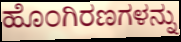
ಹೊಂಗಿರಣಗಳನ್ನು